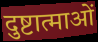
दुष्टात्माओं